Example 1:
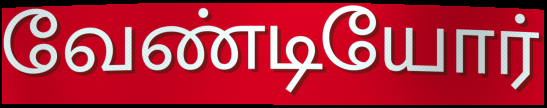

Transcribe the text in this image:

வேண்டியோர்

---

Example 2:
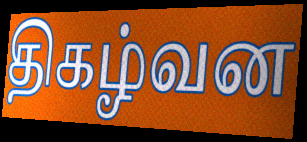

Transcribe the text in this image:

திகழ்வன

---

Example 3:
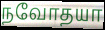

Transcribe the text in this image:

நவோதயா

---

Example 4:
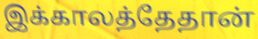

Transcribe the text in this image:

இக்காலத்தேதான்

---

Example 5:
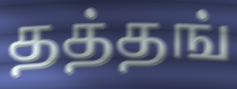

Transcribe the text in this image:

தத்தங்